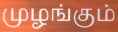
முழங்கும்